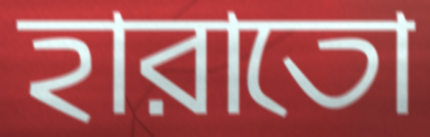
হারাতো